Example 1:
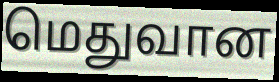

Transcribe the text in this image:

மெதுவான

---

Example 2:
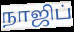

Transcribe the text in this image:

நாஜிப்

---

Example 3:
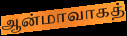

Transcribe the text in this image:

ஆன்மாவாகத்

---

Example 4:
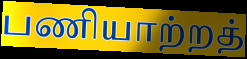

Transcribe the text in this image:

பணியாற்றத்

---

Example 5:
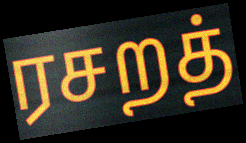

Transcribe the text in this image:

ரசறத்